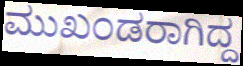
ಮುಖಂಡರಾಗಿದ್ದ